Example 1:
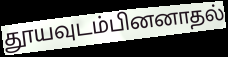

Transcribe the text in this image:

தூயவுடம்பினனாதல்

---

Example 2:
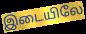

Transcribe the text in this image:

இடையிலே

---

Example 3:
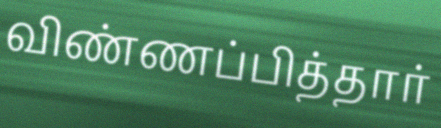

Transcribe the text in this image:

விண்ணப்பித்தார்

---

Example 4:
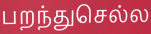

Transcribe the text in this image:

பறந்துசெல்ல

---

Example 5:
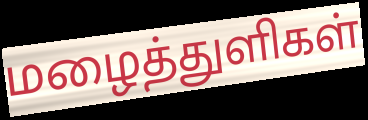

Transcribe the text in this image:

மழைத்துளிகள்